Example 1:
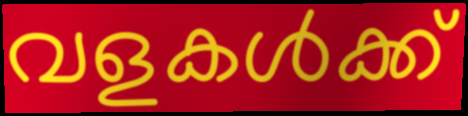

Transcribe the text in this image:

വളകൾക്ക്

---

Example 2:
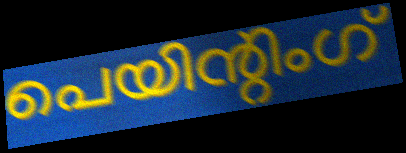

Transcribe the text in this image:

പെയിന്റിംഗ്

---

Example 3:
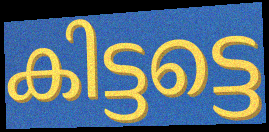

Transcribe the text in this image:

കിട്ടട്ടെ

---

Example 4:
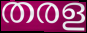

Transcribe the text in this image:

തരള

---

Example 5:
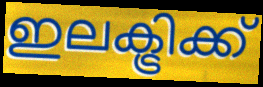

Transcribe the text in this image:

ഇലക്ട്രിക്ക്